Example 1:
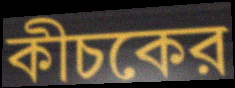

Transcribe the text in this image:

কীচকের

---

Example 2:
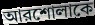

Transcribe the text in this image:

আরশোলাকে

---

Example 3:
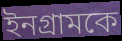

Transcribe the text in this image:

ইনগ্রামকে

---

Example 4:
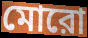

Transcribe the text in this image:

মোরো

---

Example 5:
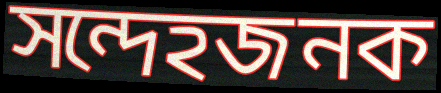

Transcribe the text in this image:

সন্দেহজনক